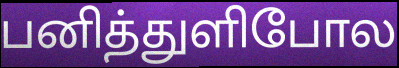
பனித்துளிபோல